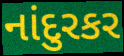
નાંદુરકર